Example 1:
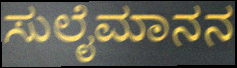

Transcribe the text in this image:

ಸುಲೈಮಾನನ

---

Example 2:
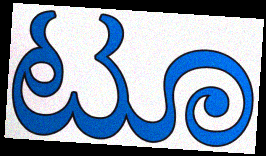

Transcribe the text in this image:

ಟೂ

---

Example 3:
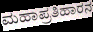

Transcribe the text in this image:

ಮಹಾಪ್ರತಿಹಾರನ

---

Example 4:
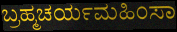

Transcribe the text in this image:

ಬ್ರಹ್ಮಚರ್ಯಮಹಿಂಸಾ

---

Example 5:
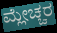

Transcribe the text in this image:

ಮ್ಲೇಚ್ಚರ